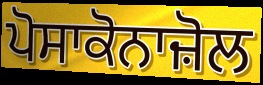
ਪੋਸਾਕੋਨਾਜ਼ੋਲ